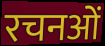
रचनओं